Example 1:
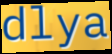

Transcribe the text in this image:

dlya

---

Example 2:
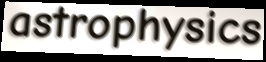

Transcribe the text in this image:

astrophysics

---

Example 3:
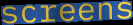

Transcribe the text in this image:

screens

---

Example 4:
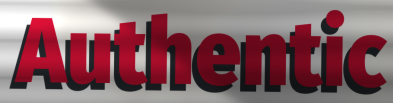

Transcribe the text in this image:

Authentic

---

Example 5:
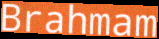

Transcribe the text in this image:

Brahmam